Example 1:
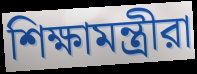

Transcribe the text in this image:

শিক্ষামন্ত্রীরা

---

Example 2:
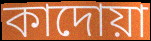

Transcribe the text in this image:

কাদোয়া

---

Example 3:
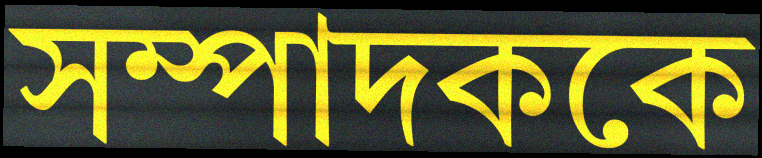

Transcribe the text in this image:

সম্পাদককে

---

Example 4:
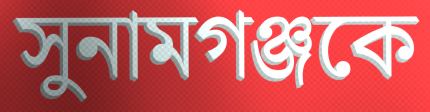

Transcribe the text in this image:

সুনামগঞ্জকে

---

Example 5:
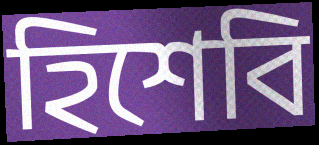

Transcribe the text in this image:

হিশেবি